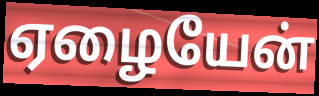
ஏழையேன்